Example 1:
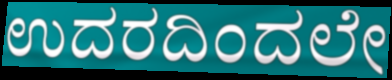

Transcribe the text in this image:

ಉದರದಿಂದಲೇ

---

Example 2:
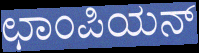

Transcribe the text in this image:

ಛಾಂಪಿಯನ್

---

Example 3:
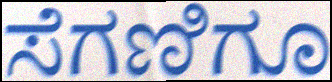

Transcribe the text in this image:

ಸೆಗಣಿಗೂ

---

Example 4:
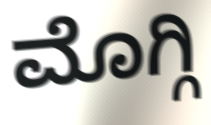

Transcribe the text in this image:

ಮೊಗ್ಗಿ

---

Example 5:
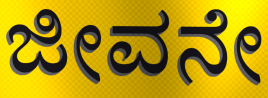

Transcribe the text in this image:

ಜೀವನೇ